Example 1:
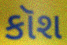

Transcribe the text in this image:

કૉશ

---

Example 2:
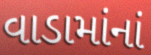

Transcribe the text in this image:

વાડામાંનાં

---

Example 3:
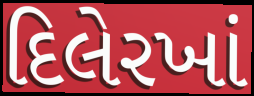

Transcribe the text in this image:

દિલેરખાં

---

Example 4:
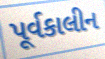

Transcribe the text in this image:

પૂર્વકાલીન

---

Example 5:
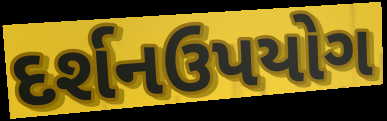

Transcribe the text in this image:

દર્શનઉપયોગ